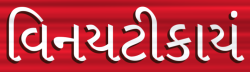
વિનયટીકાયં